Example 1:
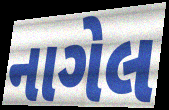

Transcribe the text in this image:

નાગેલ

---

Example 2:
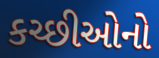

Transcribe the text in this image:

કચ્છીઓનો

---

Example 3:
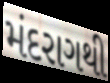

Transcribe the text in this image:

મંદરાગથી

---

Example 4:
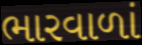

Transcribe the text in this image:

ભારવાળાં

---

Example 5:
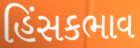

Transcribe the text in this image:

હિંસકભાવ